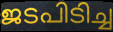
ജടപിടിച്ച